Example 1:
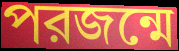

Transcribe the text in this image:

পরজন্মে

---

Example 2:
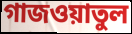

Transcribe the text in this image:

গাজওয়াতুল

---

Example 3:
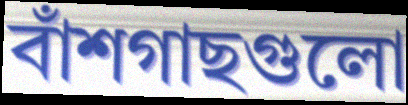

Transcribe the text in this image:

বাঁশগাছগুলো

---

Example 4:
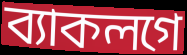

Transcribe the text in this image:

ব্যাকলগে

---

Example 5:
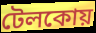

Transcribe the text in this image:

টেলকোয়